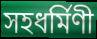
সহধর্মিণী